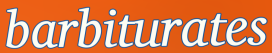
barbiturates